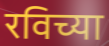
रविच्या